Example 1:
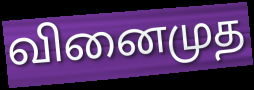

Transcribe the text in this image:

வினைமுத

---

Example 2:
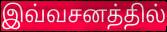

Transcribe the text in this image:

இவ்வசனத்தில்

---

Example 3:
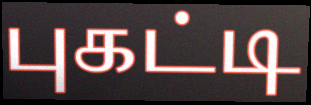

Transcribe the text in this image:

புகட்டி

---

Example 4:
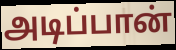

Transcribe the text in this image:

அடிப்பான்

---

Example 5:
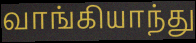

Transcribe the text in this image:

வாங்கியாந்து